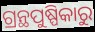
ଗ୍ରନ୍ଥପୁଷ୍ପିକାରୁ